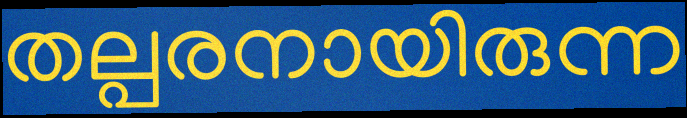
തല്പരനായിരുന്ന